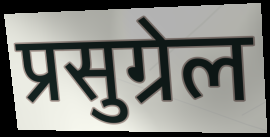
प्रसुग्रेल